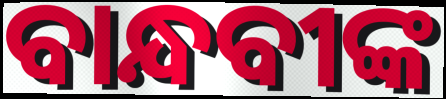
ବାନ୍ଧବୀଙ୍କ